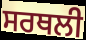
ਸਰਥਲੀ